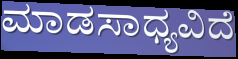
ಮಾಡಸಾಧ್ಯವಿದೆ